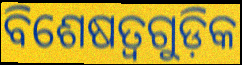
ବିଶେଷତ୍ୱଗୁଡ଼ିକ